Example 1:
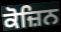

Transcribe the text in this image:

ਕੋਜ਼ਿਨ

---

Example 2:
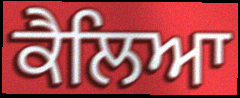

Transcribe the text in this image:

ਕੈਲਿਆ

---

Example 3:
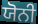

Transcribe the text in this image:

ਯੋਨੀ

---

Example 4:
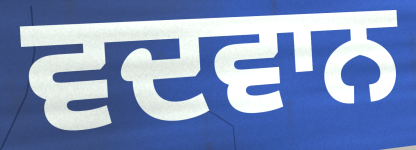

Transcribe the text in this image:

ਵਦਵਾਨ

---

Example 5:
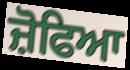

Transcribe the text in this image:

ਜ਼ੋਫਿਆ